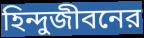
হিন্দুজীবনের